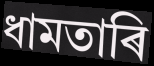
ধামতাৰি